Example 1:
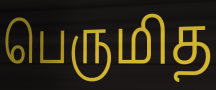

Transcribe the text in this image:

பெருமித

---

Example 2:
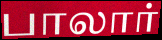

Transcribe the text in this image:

பாலார்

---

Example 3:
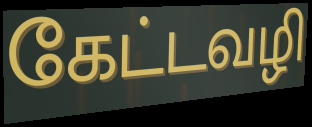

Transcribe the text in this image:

கேட்டவழி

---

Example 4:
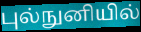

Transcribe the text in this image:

புல்நுனியில்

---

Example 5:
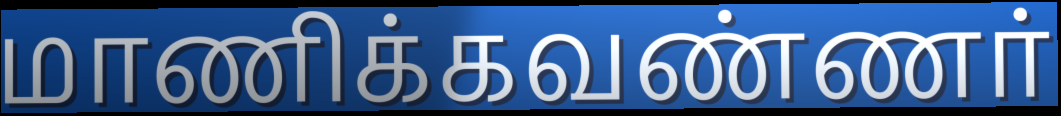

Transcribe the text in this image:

மாணிக்கவண்ணர்